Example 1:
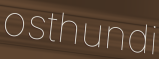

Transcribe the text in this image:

osthundi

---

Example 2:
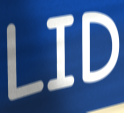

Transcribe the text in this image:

LID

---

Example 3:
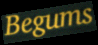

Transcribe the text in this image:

Begums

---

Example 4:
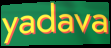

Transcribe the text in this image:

yadava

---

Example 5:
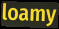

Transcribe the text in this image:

loamy